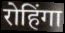
रोहिंगा